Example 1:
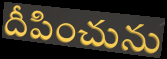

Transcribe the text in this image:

దీపించును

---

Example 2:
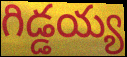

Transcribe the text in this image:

గిడ్డయ్య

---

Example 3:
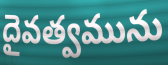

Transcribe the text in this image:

దైవత్వమును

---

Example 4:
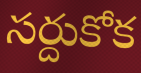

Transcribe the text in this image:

సర్దుకోక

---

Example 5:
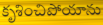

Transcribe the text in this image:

కృశించిపోయాను